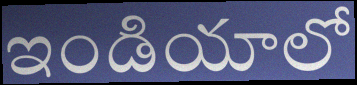
ఇండియాలో